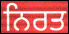
ਨਿਰਤ